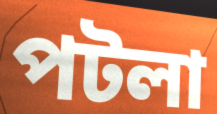
পটলা